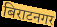
बिराटनगर